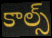
కాల్స్